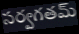
సర్వగతమ్